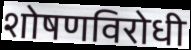
शोषणविरोधी